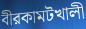
বীরকামটখালী